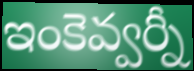
ఇంకెవ్వర్నీ